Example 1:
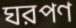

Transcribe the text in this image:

ঘরপণ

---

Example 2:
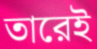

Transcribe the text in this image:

তারেই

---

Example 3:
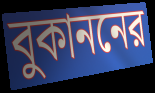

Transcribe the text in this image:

বুকাননের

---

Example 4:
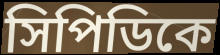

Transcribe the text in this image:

সিপিডিকে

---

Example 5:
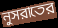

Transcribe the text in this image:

নুসরাতের